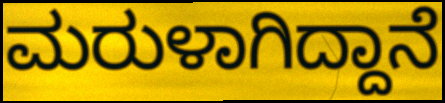
ಮರುಳಾಗಿದ್ದಾನೆ